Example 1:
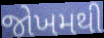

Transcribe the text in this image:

જોખમથી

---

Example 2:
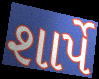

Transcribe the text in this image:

શાર્પે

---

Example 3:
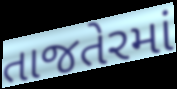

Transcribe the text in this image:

તાજતેરમાં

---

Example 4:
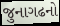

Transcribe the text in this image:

જુનાગઢનો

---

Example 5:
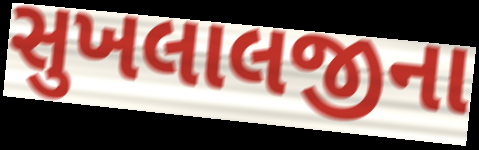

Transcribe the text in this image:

સુખલાલજીના